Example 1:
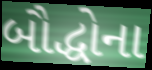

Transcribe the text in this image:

બૌદ્ધોના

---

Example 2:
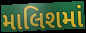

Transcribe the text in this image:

માલિશમાં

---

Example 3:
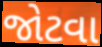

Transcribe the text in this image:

જોટવા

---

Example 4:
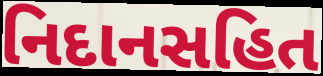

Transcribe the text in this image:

નિદાનસહિત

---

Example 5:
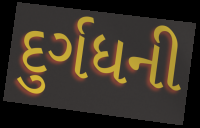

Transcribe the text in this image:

દુર્ગધની